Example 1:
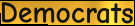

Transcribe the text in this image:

Democrats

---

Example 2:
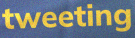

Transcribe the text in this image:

tweeting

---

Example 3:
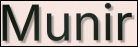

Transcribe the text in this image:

Munir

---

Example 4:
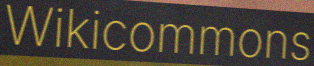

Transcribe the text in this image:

Wikicommons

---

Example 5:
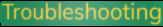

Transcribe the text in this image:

Troubleshooting